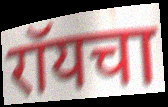
रॉयचा